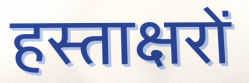
हस्ताक्षरों